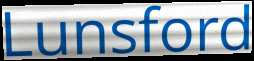
Lunsford